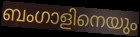
ബംഗാളിനെയും